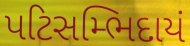
પટિસમ્ભિદાયં